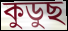
কুডুছ